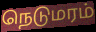
நெடுமரம்